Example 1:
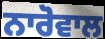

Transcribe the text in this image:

ਨਾਰੋਵਾਲ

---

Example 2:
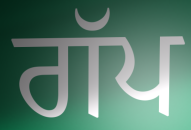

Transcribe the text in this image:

ਗੱਪ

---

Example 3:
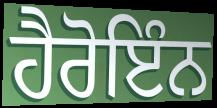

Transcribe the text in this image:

ਹੈਰੋਇੰਨ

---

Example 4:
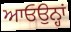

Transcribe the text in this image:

ਆਓਉਨ੍ਹਾਂ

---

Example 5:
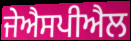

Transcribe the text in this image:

ਜੇਐਸਪੀਐਲ